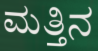
ಮತ್ತಿನ